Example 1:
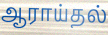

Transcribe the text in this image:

ஆராய்தல்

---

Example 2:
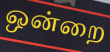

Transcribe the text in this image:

ஒன்றை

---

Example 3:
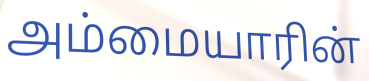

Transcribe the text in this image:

அம்மையாரின்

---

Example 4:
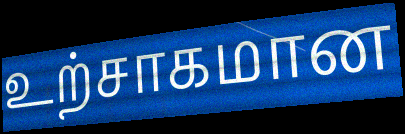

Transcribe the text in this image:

உற்சாகமான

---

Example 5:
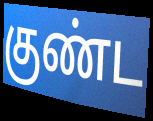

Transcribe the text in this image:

குண்ட